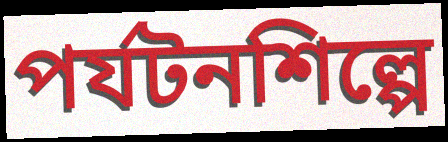
পর্যটনশিল্পে